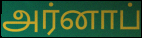
அர்னாப்